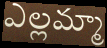
ఎల్లమ్మా